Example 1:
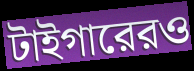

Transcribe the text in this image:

টাইগারেরও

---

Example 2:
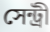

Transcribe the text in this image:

সেন্ট্রী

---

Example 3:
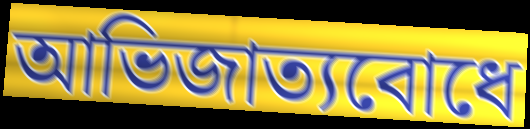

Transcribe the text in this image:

আভিজাত্যবোধে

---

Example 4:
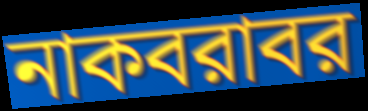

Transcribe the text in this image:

নাকবরাবর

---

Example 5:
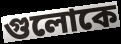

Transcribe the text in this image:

গুলোকে